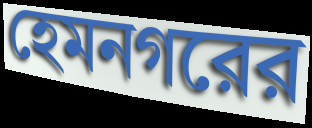
হেমনগরের